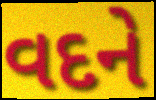
વદને